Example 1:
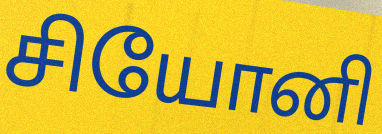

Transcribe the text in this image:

சியோனி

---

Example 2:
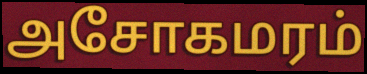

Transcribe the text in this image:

அசோகமரம்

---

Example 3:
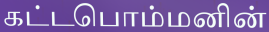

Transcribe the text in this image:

கட்டபொம்மனின்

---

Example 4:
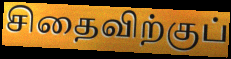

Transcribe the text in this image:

சிதைவிற்குப்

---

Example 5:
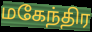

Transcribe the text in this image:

மகேந்திர